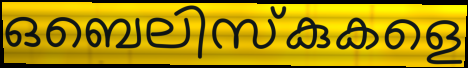
ഒബെലിസ്കുകളെ